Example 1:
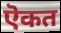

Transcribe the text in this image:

ऎकत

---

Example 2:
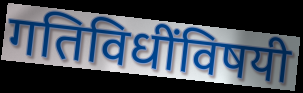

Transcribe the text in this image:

गतिविधींविषयी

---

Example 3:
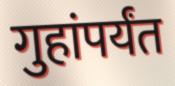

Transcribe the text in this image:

गुहांपर्यंत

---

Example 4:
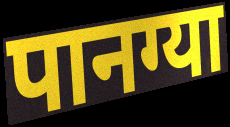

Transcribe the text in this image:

पानग्या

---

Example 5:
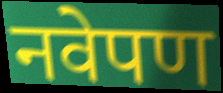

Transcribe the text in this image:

नवेपण